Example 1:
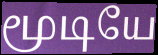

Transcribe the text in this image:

மூடியே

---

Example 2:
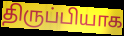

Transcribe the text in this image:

திருப்பியாக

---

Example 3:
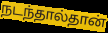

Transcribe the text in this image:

நடந்தால்தான்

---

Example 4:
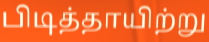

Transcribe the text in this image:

பிடித்தாயிற்று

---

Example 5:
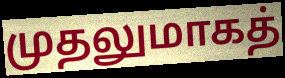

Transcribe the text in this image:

முதலுமாகத்